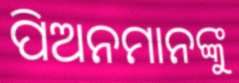
ପିଅନମାନଙ୍କୁ